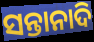
ସନ୍ତାନାଦି